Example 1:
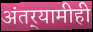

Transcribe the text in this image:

अंतर्यामीही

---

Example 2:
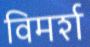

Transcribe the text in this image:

विमर्श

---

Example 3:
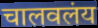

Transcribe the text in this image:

चालवलंय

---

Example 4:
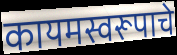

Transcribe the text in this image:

कायमस्वरूपाचे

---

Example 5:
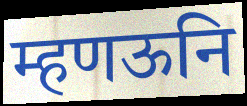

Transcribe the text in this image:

म्हणऊनि